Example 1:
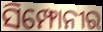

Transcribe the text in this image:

ସିମ୍ଫୋନୀର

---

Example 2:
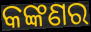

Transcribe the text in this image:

କଙ୍କଣର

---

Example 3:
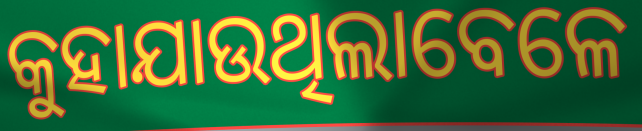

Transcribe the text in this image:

କୁହାଯାଉଥିଲାବେଳେ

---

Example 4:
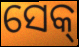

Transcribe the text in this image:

ସେକ୍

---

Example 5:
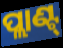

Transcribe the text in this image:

ପ୍ଲାଣ୍ଟ୍